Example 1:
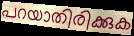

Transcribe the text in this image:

പറയാതിരിക്കുക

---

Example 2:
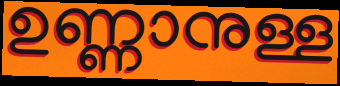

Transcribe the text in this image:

ഉണ്ണാനുള്ള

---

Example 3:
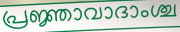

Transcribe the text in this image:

പ്രജ്ഞാവാദാംശ്ച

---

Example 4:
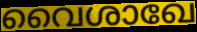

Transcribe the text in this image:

വൈശാഖേ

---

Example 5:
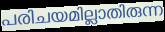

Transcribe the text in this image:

പരിചയമില്ലാതിരുന്ന